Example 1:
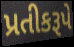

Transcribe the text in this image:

પ્રતીકરૂપે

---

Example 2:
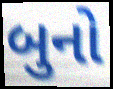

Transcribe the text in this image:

બુનો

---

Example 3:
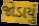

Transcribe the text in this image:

જોડાયું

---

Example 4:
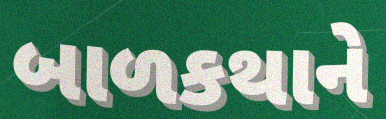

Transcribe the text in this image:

બાળકથાને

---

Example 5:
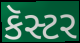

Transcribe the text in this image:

કૅસ્ટર